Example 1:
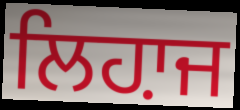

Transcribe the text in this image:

ਲਿਹ਼ਾਜ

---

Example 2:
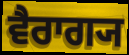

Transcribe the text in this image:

ਵੈਰਾਗ੍ਯ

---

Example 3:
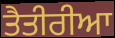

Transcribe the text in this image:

ਤੈਤੀਰੀਆ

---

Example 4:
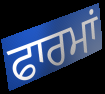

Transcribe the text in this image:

ਫਾਰਮਾਂ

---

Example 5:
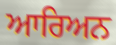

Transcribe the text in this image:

ਆਰਿਅਨ